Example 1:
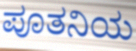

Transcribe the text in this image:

ಪೂತನಿಯ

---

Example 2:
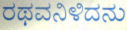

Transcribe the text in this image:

ರಥವನಿಳಿದನು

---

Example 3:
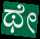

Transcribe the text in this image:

ಥೇ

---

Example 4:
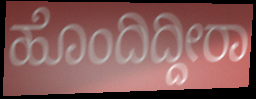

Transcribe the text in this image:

ಹೊಂದಿದ್ದೀರಾ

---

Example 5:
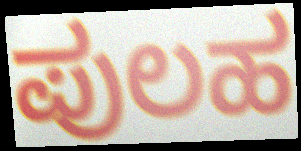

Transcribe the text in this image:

ಪುಲಹ